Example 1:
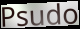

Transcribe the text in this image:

Psudo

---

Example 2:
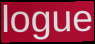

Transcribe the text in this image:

logue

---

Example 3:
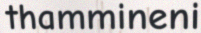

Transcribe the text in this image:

thammineni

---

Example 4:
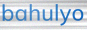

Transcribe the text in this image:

bahulyo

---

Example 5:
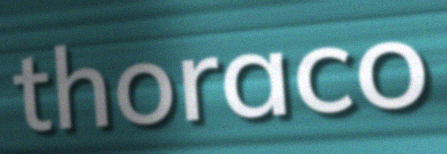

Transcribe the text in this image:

thoraco